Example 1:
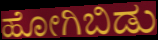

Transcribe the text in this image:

ಹೋಗಿಬಿಡು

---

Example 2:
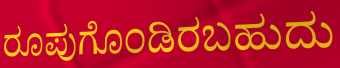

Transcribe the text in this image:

ರೂಪುಗೊಂಡಿರಬಹುದು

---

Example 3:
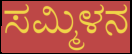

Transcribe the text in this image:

ಸಮ್ಮಿಳನ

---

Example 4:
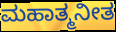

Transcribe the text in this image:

ಮಹಾತ್ಮನೀತ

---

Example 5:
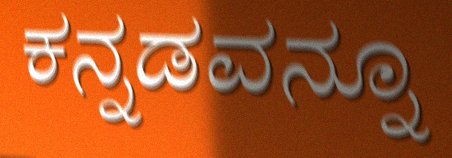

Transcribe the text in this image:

ಕನ್ನಡವನ್ನೂ